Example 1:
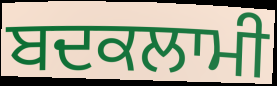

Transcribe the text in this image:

ਬਦਕਲਾਮੀ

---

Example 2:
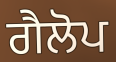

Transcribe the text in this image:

ਗੈਲੋਪ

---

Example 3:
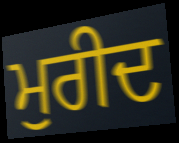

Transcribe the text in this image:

ਮੁਰੀਦ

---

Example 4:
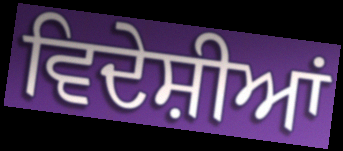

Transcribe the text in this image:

ਵਿਦੇਸ਼ੀਆਂ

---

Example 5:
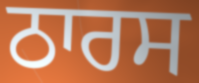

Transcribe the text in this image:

ਠਾਰਸ